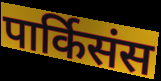
पार्किसंस